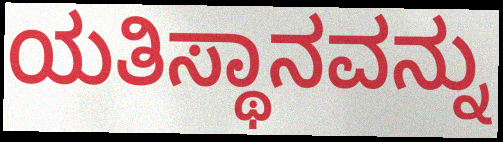
ಯತಿಸ್ಥಾನವನ್ನು